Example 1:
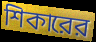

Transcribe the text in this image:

শিকারের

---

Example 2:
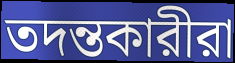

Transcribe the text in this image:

তদন্তকারীরা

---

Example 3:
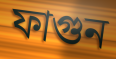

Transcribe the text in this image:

ফাগুন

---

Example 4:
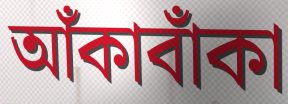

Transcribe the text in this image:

আঁকাবাঁকা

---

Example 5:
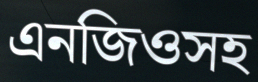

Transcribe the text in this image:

এনজিওসহ